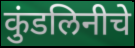
कुंडलिनीचे